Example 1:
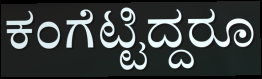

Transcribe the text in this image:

ಕಂಗೆಟ್ಟಿದ್ದರೂ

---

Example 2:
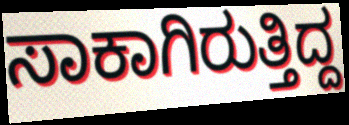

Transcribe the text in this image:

ಸಾಕಾಗಿರುತ್ತಿದ್ದ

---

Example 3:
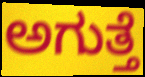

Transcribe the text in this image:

ಅಗುತ್ತೆ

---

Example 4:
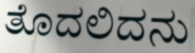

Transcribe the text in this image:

ತೊದಲಿದನು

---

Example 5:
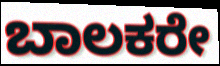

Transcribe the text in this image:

ಬಾಲಕರೇ